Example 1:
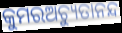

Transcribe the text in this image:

କୁମରଅଚ୍ୟୁତାନନ୍ଦ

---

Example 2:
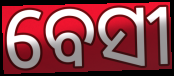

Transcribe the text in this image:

ବେସୀ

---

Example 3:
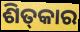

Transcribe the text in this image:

ଶିତ୍‍କାର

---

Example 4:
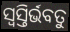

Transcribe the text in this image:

ସ୍ୱସ୍ତିର୍ଭବତୁ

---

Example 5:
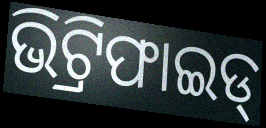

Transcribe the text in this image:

ଭିଟ୍ରିଫାଇଡ୍